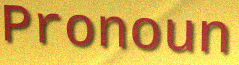
Pronoun